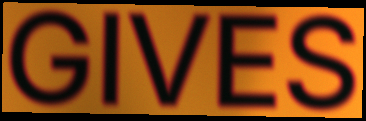
GIVES